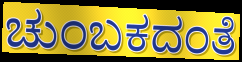
ಚುಂಬಕದಂತೆ